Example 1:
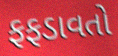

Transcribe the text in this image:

ફફડાવતો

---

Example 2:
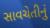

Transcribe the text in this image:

સાવચેતીનું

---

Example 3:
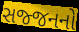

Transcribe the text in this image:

સજ્જનનો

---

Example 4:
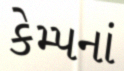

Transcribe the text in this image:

કેમ્પનાં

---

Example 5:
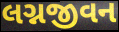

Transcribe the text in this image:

લગ્નજીવન